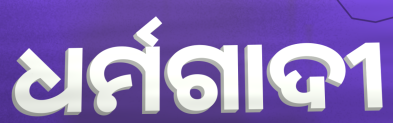
ଧର୍ମଗାଦୀ